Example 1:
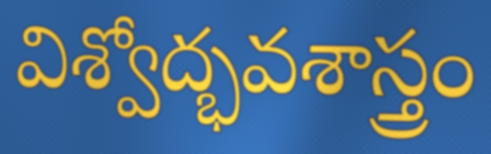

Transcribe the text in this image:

విశ్వోద్భవశాస్త్రం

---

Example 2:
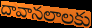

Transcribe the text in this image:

దావానలాలకు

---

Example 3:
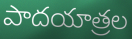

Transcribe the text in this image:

పాదయాత్రల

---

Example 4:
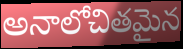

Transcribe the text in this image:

అనాలోచితమైన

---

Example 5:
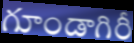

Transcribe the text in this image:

గూండాగిరీ